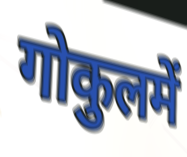
गोकुलमें